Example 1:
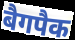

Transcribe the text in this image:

बैगपैक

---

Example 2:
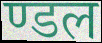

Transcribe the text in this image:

ण्डल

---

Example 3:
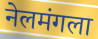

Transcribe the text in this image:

नेलमंगला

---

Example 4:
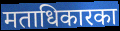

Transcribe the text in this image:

मताधिकारका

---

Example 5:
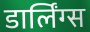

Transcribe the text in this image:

डार्लिंग्स